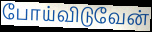
போய்விடுவேன்